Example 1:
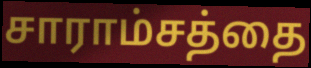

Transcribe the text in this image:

சாராம்சத்தை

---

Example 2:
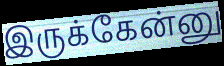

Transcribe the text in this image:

இருக்கேன்னு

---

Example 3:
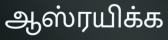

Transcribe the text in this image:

ஆஸ்ரயிக்க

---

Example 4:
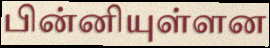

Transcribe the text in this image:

பின்னியுள்ளன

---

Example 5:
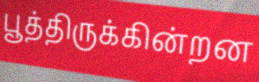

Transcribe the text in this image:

பூத்திருக்கின்றன